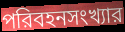
পরিবহনসংখ্যার